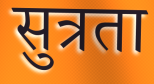
सुत्रता